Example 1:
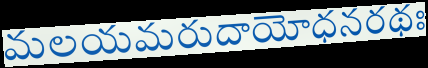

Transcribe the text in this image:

మలయమరుదాయోధనరథః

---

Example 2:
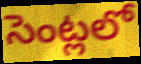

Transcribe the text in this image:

సెంట్లలో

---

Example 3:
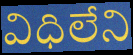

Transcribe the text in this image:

విధిలేని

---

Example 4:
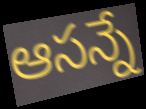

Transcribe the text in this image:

ఆసన్నే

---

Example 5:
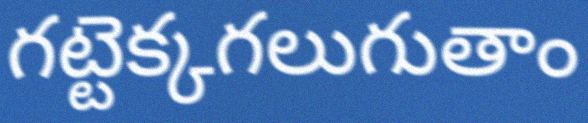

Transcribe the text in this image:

గట్టెక్కగలుగుతాం